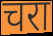
चरा